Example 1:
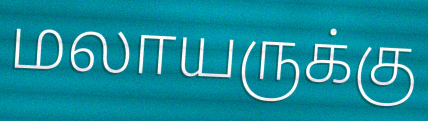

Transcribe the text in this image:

மலாயருக்கு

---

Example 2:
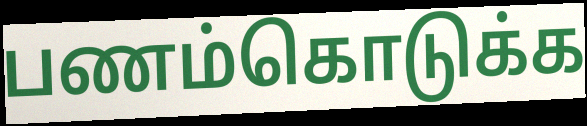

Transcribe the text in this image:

பணம்கொடுக்க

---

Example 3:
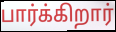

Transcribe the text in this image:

பார்க்கிறார்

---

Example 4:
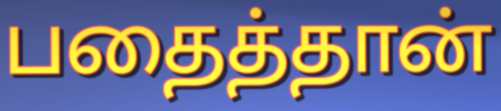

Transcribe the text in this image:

பதைத்தான்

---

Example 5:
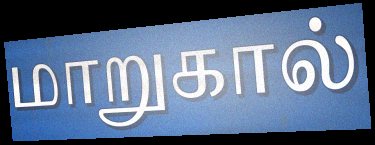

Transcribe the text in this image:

மாறுகால்